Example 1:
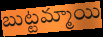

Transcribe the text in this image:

బుట్టమ్మాయి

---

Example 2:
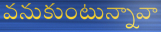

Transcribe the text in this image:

వనుకుంటున్నావా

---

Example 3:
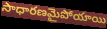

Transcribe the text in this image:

సాధారణమైపోయాయి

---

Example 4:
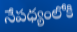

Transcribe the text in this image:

నేపధ్యంలోకి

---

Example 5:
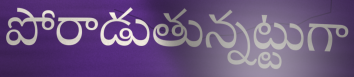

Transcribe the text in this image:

పోరాడుతున్నట్టుగా